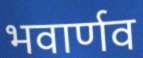
भवार्णव